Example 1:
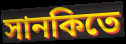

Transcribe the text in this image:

সানকিতে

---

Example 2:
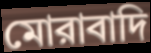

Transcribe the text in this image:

মোরাবাদি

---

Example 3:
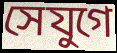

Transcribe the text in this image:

সেযুগে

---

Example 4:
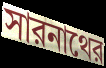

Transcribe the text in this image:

সারনাথের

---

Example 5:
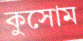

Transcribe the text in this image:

কুসোম